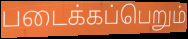
படைக்கப்பெறும்